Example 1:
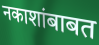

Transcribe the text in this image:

नकाशांबाबत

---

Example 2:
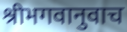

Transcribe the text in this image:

श्रीभगवानुवाच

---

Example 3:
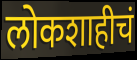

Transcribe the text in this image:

लोकशाहीचं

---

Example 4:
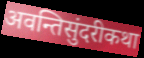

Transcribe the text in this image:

अवन्तिसुंदरीकथा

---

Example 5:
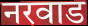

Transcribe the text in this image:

नरवाड